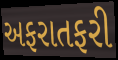
અફરાતફરી